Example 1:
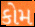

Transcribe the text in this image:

કોમ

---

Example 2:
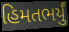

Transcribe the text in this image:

હિમતભર્યું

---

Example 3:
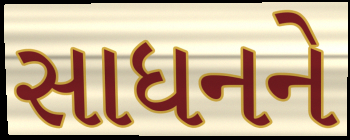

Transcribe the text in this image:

સાધનને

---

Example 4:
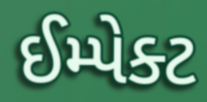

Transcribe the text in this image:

ઈમ્પેક્ટ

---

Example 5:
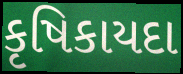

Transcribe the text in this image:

કૃષિકાયદા